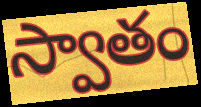
స్వాతం